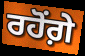
ਰਹੋਂਗ਼ੇ